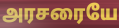
அரசரையே